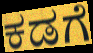
ಕಡಗೆ